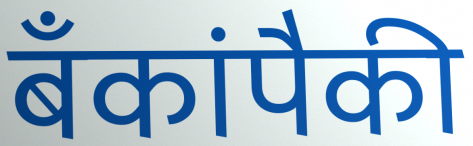
बँकांपैकी